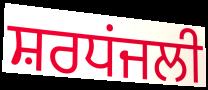
ਸ਼ਰਧਂਜਲੀ